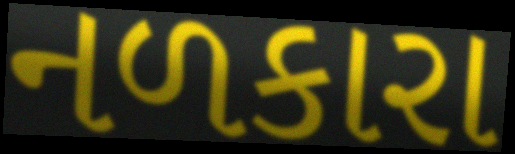
નળકારા